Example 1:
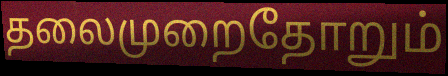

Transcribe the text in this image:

தலைமுறைதோறும்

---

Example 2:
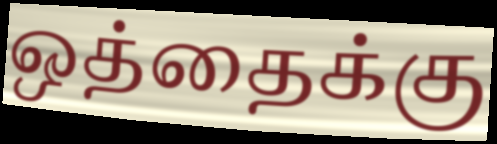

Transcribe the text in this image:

ஒத்தைக்கு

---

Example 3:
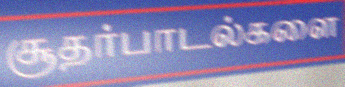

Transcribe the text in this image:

சூதர்பாடல்களை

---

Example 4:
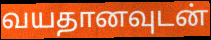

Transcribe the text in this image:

வயதானவுடன்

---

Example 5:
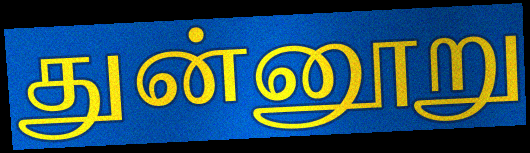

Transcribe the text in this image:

துன்னூறு